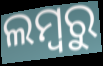
ଲମ୍ବରୁ